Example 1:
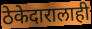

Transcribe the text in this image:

ठेकेदारालाही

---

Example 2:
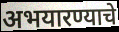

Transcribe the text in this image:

अभयारण्याचे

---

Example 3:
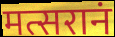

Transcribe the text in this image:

मत्सरानं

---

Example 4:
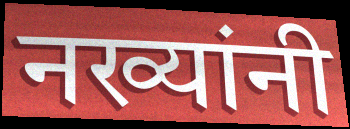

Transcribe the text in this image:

नख्यांनी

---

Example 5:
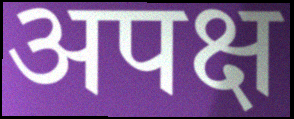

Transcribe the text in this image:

अपक्ष